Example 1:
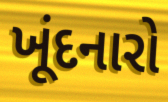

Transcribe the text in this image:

ખૂંદનારો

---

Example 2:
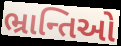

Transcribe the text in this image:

ભ્રાન્તિઓ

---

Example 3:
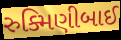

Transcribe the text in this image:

રુક્મિણીબાઈ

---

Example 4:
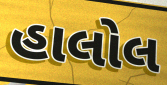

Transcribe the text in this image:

હાલોલ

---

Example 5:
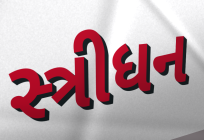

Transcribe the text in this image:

સ્ત્રીધન